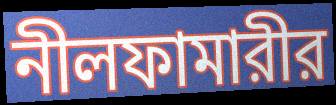
নীলফামারীর